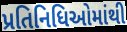
પ્રતિનિધિઓમાંથી